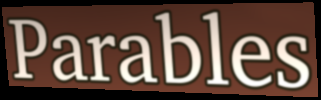
Parables